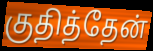
குதித்தேன்